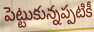
పెట్టుకున్నప్పటికీ